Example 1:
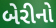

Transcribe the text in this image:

બેરીનો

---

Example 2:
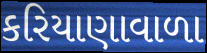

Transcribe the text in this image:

કરિયાણાવાળા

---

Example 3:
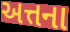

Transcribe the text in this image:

અત્તના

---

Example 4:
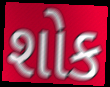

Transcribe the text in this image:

શોક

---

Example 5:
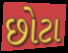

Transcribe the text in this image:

છોટા